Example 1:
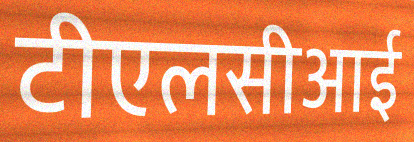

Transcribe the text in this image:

टीएलसीआई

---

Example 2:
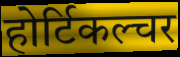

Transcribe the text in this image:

होर्टिकल्चर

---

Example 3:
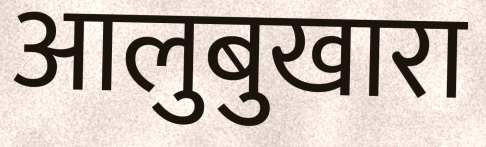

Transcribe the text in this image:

आलुबुखारा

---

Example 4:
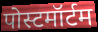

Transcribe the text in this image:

पोस्टमॉर्टम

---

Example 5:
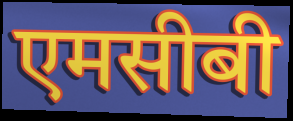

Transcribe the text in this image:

एमसीबी